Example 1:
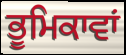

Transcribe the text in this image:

ਭੂਮਿਕਾਵਾਂ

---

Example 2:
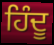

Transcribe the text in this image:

ਹਿੰਦੂ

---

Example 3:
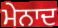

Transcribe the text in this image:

ਮੇਨਾਦ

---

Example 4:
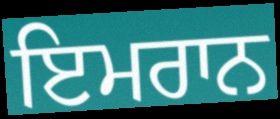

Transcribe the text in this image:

ਇਮਰਾਨ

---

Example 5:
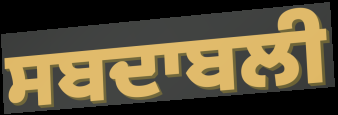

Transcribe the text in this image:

ਸਬਦਾਬਲੀ